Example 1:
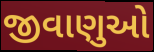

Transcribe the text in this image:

જીવાણુઓ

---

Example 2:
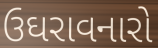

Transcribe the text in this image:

ઉઘરાવનારો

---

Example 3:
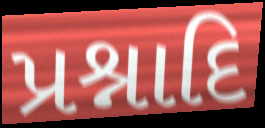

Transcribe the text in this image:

પ્રશ્નાદિ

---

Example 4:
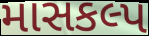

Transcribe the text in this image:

માસકલ્પ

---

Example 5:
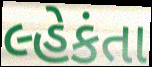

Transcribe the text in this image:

લ્હેકંતા